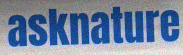
asknature